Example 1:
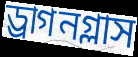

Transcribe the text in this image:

ড্রাগনগ্লাস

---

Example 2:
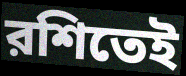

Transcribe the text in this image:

রশিতেই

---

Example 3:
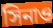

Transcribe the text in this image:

সিনাও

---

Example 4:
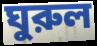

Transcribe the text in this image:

ঘুরুল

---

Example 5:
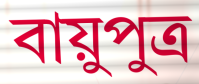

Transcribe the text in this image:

বায়ুপুত্র